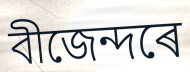
বীজেন্দৰে